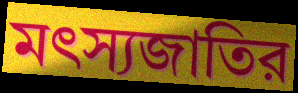
মৎস্যজাতির